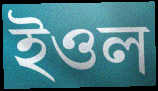
ইওল